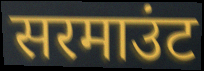
सरमाउंट